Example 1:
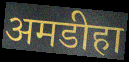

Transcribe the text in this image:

अमडीहा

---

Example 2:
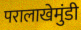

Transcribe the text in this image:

परालाखेमुंडी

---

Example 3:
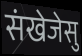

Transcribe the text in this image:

संखेजेसु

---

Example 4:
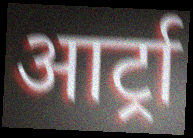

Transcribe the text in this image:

आर्ट्रा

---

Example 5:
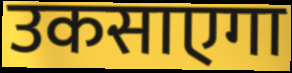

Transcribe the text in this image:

उकसाएगा